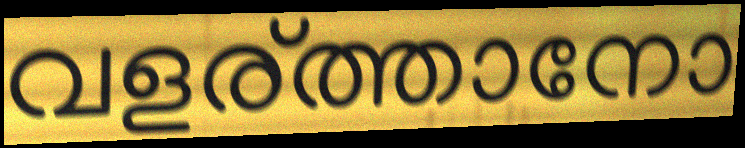
വളര്ത്താനോ